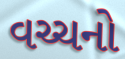
વચ્ચનો